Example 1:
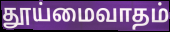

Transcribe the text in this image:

தூய்மைவாதம்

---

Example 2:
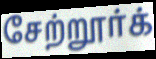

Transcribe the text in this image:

சேற்றூர்க்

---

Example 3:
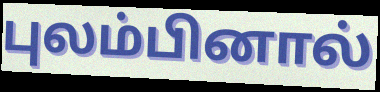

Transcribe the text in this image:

புலம்பினால்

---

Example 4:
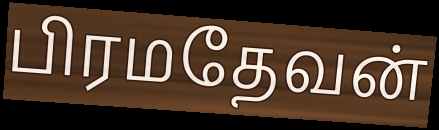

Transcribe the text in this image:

பிரமதேவன்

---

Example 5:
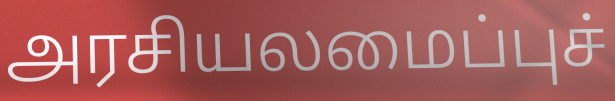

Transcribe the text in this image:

அரசியலமைப்புச்